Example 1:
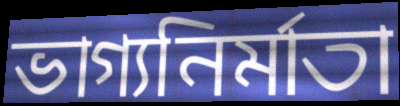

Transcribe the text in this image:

ভাগ্যনির্মাতা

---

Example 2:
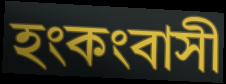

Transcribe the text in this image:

হংকংবাসী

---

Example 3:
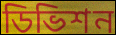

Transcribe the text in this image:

ডিভিশন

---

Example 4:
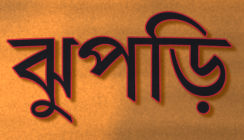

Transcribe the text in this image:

ঝুপড়ি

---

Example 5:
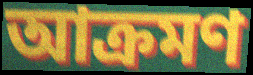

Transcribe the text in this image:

আক্রমণ